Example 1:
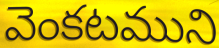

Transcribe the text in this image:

వెంకటముని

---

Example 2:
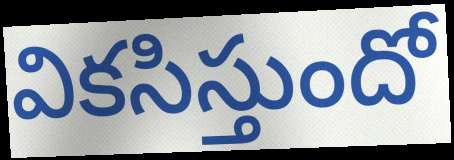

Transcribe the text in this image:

వికసిస్తుందో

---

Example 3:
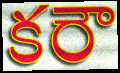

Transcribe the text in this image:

కరౌ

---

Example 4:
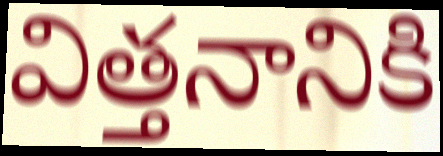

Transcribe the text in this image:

విత్తనానికి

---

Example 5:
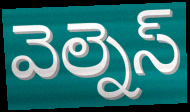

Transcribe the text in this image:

వెల్నెస్